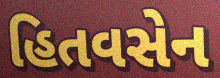
હિતવસેન